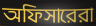
অফিসারেরা